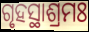
ଗୃହସ୍ଥାଶ୍ରମଃ